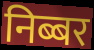
निब्बर